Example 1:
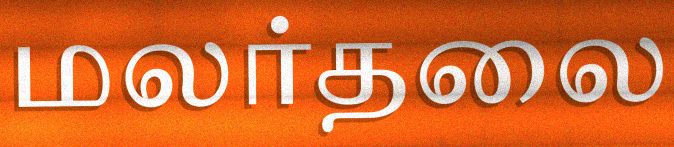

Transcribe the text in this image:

மலர்தலை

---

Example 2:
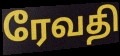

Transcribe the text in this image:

ரேவதி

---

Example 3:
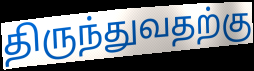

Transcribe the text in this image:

திருந்துவதற்கு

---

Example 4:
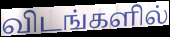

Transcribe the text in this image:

விடங்களில்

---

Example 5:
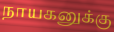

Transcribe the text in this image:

நாயகனுக்கு